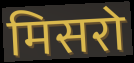
मिसरो